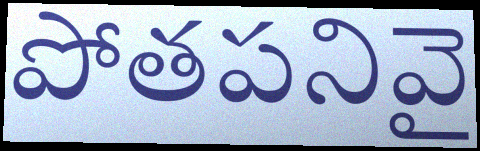
పోతపనివై